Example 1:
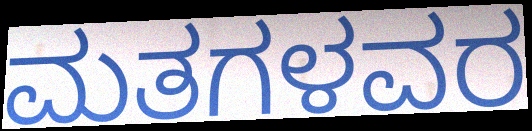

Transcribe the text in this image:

ಮತಗಳವರ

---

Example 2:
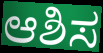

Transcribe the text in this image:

ಆಶಿಸ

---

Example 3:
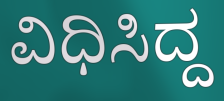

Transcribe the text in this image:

ವಿಧಿಸಿದ್ದ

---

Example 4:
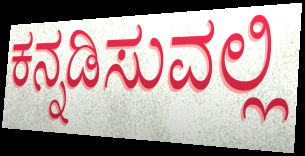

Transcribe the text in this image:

ಕನ್ನಡಿಸುವಲ್ಲಿ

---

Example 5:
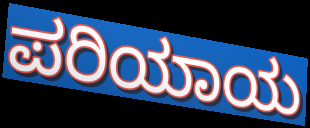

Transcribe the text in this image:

ಪರಿಯಾಯ